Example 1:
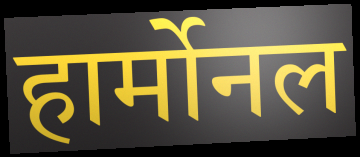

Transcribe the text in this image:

हार्मोनल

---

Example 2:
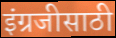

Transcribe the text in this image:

इंग्रजीसाठी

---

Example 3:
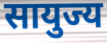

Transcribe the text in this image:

सायुज्य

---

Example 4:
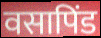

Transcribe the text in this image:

वसापिंड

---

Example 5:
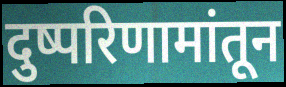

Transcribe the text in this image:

दुष्परिणामांतून